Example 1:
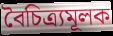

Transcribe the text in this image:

বৈচিত্ৰ্যমূলক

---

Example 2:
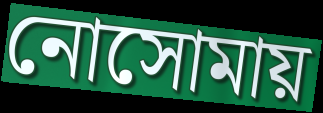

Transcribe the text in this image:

নোসোমায়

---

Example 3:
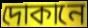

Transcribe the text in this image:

দোকানে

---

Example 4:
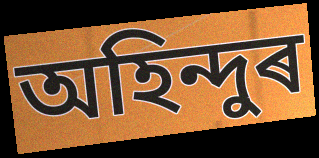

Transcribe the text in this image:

অহিন্দুৰ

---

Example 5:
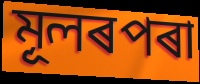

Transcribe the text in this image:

মূলৰপৰা